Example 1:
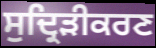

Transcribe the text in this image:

ਸੁਦ੍ਰਿੜੀਕਰਣ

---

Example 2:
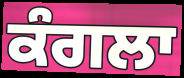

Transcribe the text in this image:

ਕੰਗਲਾ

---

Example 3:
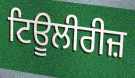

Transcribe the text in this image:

ਟਿਊਲੀਰੀਜ਼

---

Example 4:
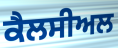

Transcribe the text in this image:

ਕੈਲਸੀਅਲ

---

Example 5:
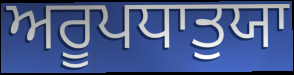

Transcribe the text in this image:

ਅਰੂਪਧਾਤੁਯਾ